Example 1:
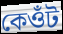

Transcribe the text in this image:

কেওঁট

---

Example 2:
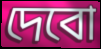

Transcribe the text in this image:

দেবো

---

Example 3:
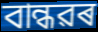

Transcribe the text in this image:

বান্ধৱৰ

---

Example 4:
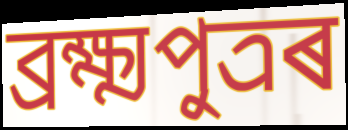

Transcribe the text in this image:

ব্ৰক্ষ্মপুত্ৰৰ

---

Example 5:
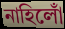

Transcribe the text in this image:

নাহিলোঁ